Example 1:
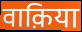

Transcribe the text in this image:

वाक़िया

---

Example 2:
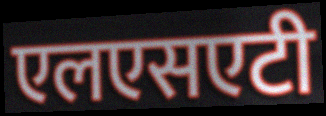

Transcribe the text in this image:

एलएसएटी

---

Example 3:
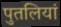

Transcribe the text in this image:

पुतलियां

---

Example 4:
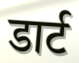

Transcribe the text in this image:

डार्ट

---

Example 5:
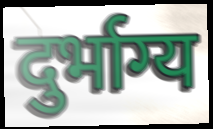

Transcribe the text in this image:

दुर्भाग्य